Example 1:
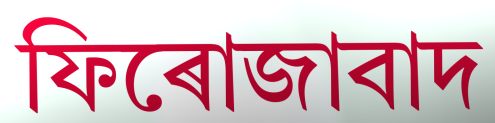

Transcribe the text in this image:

ফিৰোজাবাদ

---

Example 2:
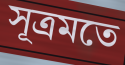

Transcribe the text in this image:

সূত্ৰমতে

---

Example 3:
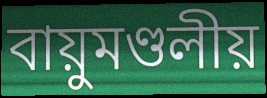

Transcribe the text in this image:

বায়ুমণ্ডলীয়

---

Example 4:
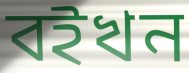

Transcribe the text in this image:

বইখন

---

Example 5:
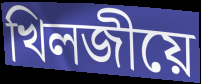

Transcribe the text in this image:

খিলজীয়ে